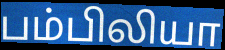
பம்பிலியா